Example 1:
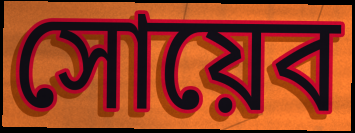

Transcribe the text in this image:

সোয়েব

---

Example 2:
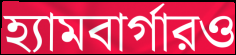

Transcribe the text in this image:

হ্যামবার্গারও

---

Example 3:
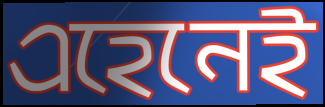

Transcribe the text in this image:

এহেনেই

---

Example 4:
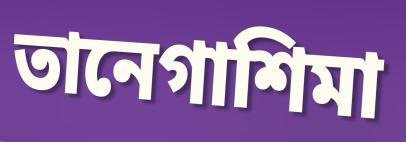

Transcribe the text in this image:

তানেগাশিমা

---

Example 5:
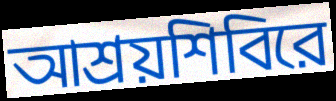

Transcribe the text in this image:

আশ্রয়শিবিরে